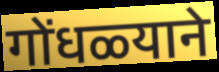
गोंधळ्याने